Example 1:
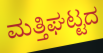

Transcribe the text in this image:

ಮತ್ತಿಘಟ್ಟದ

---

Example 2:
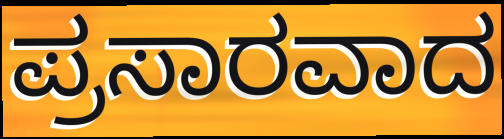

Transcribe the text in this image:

ಪ್ರಸಾರವಾದ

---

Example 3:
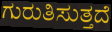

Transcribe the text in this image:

ಗುರುತಿಸುತ್ತದೆ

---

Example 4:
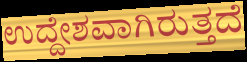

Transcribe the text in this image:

ಉದ್ದೇಶವಾಗಿರುತ್ತದೆ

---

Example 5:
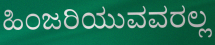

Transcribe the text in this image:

ಹಿಂಜರಿಯುವವರಲ್ಲ